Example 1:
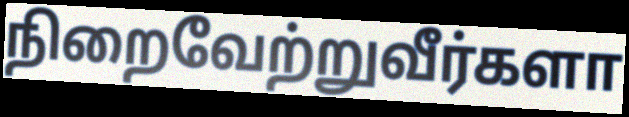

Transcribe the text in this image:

நிறைவேற்றுவீர்களா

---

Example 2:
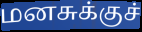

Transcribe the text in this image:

மனசுக்குச்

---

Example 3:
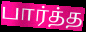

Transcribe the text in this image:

பார்த்த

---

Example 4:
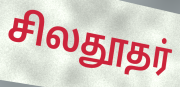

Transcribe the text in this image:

சிலதூதர்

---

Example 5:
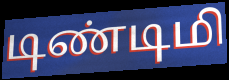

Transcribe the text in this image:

டிண்டிமி